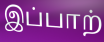
இப்பாற்